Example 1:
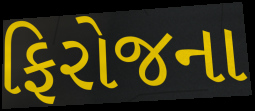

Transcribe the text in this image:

ફિરોજના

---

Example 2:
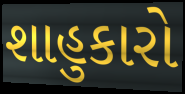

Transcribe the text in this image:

શાહુકારો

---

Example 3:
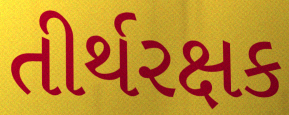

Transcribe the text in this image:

તીર્થરક્ષક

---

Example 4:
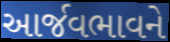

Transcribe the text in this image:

આર્જવભાવને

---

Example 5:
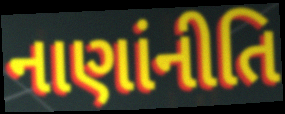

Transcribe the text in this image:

નાણાંનીતિ